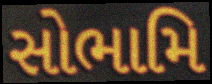
સોભામિ